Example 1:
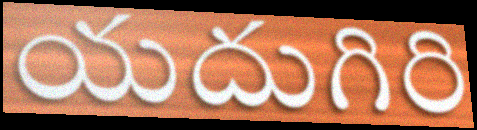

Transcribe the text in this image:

యదుగిరి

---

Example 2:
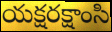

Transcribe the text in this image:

యక్షరక్షాంసి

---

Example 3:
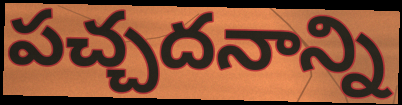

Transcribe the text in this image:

పచ్చదనాన్ని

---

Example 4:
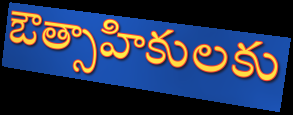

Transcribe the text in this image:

ఔత్సాహికులకు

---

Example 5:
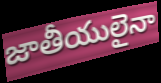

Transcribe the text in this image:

జాతీయులైనా